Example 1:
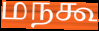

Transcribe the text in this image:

மநகூ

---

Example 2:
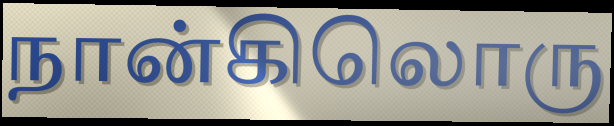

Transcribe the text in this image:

நான்கிலொரு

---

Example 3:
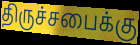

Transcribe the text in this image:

திருச்சபைக்கு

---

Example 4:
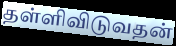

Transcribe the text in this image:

தள்ளிவிடுவதன்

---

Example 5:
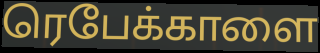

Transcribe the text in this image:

ரெபேக்காளை